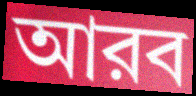
আরব